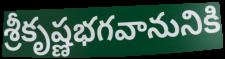
శ్రీకృష్ణభగవానునికి